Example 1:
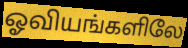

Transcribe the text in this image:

ஓவியங்களிலே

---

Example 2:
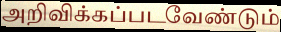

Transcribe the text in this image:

அறிவிக்கப்படவேண்டும்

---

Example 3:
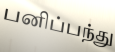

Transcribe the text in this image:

பனிப்பந்து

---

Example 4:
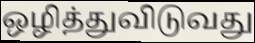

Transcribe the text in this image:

ஒழித்துவிடுவது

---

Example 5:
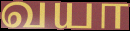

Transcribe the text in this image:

வயா